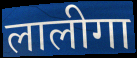
लालीगा